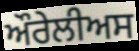
ਔਰੇਲੀਅਸ